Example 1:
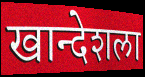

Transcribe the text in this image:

खान्देशला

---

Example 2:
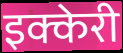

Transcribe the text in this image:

इक्केरी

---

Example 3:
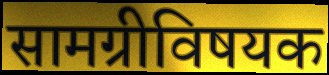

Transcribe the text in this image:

सामग्रीविषयक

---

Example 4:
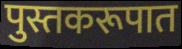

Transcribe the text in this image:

पुस्तकरूपात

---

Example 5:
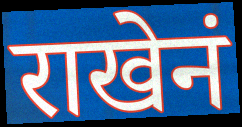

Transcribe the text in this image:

राखेनं